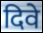
दिवे